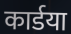
कार्डया